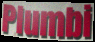
Plumbi